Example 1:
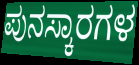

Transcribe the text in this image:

ಪುನಸ್ಕಾರಗಳ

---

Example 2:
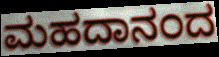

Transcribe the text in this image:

ಮಹದಾನಂದ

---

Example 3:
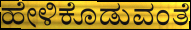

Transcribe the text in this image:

ಹೇಳಿಕೊಡುವಂತೆ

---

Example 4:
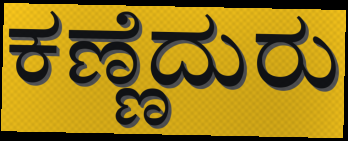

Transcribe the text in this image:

ಕಣ್ಣೆದುರು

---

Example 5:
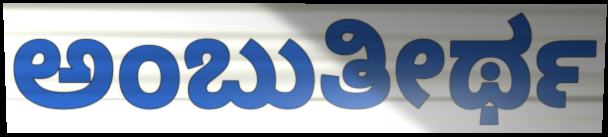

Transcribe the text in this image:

ಅಂಬುತೀರ್ಥ